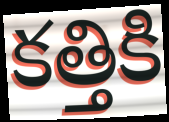
కత్తికి